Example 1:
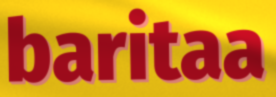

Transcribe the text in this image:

baritaa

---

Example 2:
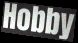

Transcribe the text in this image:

Hobby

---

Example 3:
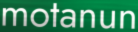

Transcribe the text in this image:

motanun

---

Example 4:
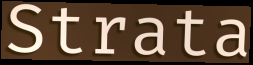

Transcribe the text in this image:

Strata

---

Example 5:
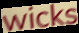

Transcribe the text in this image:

wicks